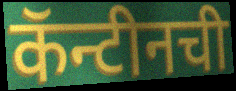
कॅन्टीनची